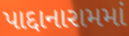
પાદ્દાનારામમાં